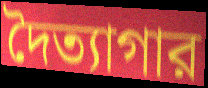
দৈত্যাগার